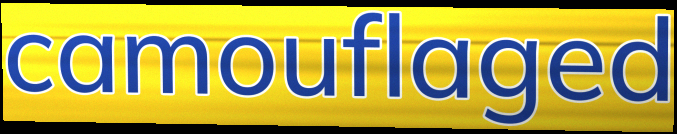
camouflaged